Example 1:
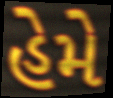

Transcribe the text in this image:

હેમે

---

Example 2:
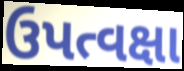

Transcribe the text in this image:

ઉપત્વક્ષા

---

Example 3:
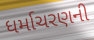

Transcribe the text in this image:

ધર્માચરણની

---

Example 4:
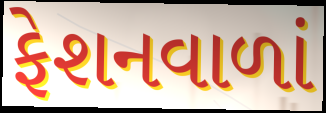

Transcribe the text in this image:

ફેશનવાળાં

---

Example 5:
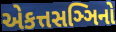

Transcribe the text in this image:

એકત્તસઞ્ઞિનો